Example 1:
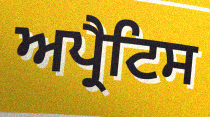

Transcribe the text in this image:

ਅਪ੍ਰੈਟਿਸ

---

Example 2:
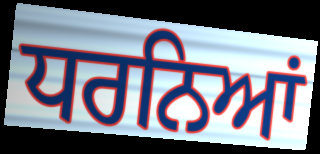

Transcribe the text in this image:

ਧਰਨਿਆਂ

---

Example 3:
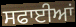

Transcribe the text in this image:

ਸਫਾਈਆਂ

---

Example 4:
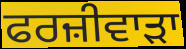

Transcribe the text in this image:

ਫਰਜ਼ੀਵਾੜਾ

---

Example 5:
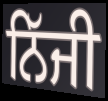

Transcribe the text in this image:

ਨਿੱਜੀ